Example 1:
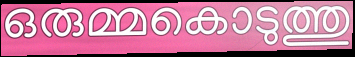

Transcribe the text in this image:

ഒരുമ്മകൊടുത്തു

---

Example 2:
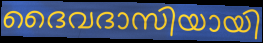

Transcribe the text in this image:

ദൈവദാസിയായി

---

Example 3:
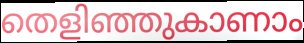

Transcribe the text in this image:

തെളിഞ്ഞുകാണാം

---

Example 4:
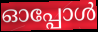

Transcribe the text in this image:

ഓപ്പോൾ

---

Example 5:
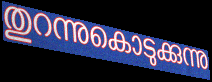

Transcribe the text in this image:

തുറന്നുകൊടുക്കുന്നു